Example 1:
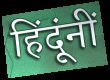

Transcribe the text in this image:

हिंदूंनीं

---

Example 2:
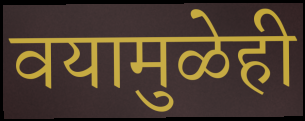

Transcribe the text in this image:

वयामुळेही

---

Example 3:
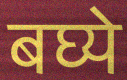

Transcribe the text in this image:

बघ्ये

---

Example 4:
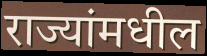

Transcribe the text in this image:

राज्यांमधील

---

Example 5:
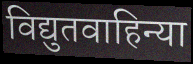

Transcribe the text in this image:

विद्युतवाहिन्या